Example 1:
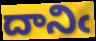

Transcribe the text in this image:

దానిఁ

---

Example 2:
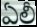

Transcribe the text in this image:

ఏలీ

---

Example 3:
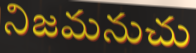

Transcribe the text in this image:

నిజమనుచు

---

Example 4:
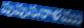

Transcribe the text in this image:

పుపుసనాళము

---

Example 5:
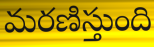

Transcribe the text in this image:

మరణిస్తుంది